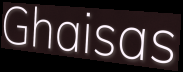
Ghaisas